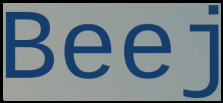
Beej